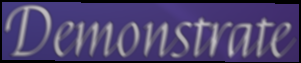
Demonstrate